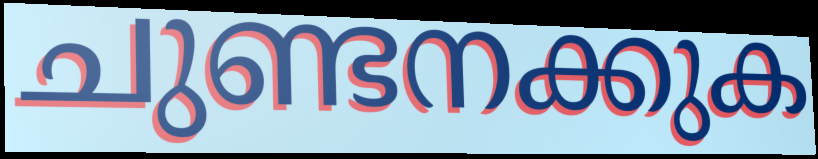
ചുണ്ടനക്കുക